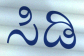
ಸಿಡಿ